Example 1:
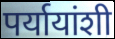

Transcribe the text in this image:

पर्यायांशी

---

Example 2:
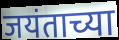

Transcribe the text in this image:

जयंताच्या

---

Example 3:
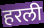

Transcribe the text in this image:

हरली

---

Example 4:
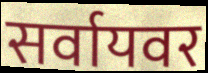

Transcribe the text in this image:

सर्वायवर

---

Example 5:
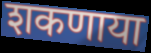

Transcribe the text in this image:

शकणाया